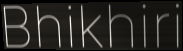
Bhikhiri